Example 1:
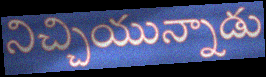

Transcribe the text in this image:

నిచ్చియున్నాడు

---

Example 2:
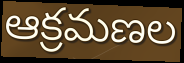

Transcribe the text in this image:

ఆక్రమణల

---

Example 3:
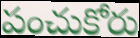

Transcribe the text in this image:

పంచుకోరు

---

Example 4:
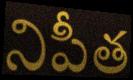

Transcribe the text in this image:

నిపీత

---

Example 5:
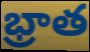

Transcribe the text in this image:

భ్రాత